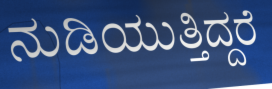
ನುಡಿಯುತ್ತಿದ್ದರೆ